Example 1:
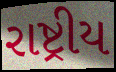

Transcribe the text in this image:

રાષ્ટ્રીય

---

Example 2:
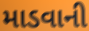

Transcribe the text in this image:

માડવાની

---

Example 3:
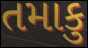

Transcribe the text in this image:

તમાકુ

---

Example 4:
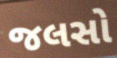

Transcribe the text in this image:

જલસો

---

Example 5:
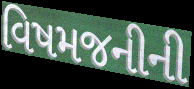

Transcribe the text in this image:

વિષમજનીની